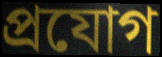
প্ৰযোগ